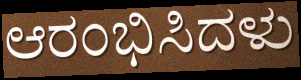
ಆರಂಭಿಸಿದಳು